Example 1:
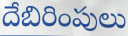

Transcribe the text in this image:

దేబిరింపులు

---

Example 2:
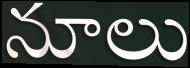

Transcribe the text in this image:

నూలు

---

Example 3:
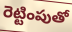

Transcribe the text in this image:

రెట్టింపుతో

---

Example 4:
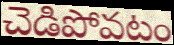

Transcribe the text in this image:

చెడిపోవటం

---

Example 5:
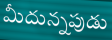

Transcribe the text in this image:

మీదున్నపుడు